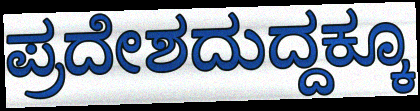
ಪ್ರದೇಶದುದ್ದಕ್ಕೂ